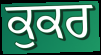
ਕੁਕਰ